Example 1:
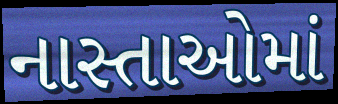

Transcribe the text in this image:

નાસ્તાઓમાં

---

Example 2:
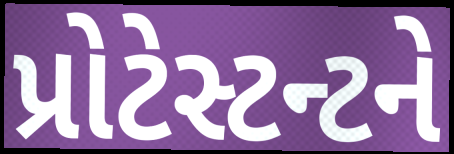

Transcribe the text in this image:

પ્રોટેસ્ટન્ટને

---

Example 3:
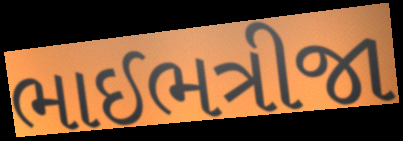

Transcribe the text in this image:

ભાઈભત્રીજા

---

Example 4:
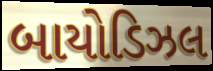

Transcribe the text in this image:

બાયોડિઝલ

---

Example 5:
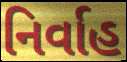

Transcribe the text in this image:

નિર્વાહ